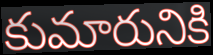
కుమారునికి